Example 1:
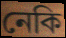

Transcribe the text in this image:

নেকি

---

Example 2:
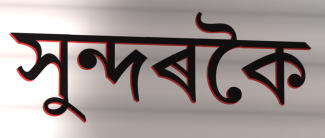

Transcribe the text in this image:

সুন্দৰকৈ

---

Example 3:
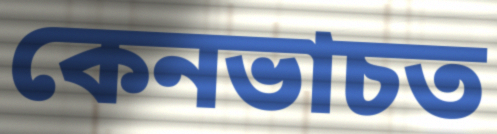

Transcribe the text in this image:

কেনভাচত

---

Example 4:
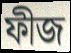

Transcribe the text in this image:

ফীজ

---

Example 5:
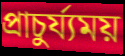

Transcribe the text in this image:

প্ৰাচুৰ্য্যময়